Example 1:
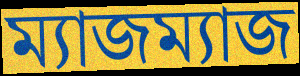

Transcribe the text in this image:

ম্যাজম্যাজ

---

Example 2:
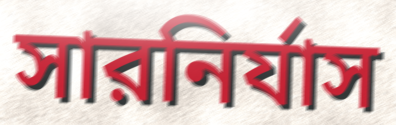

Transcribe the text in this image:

সারনির্যাস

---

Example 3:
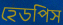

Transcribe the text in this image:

হেডপিস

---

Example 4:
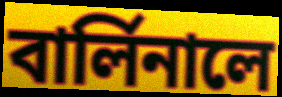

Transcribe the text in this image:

বার্লিনালে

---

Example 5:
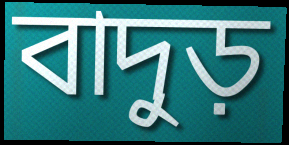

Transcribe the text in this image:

বাদুড়